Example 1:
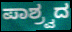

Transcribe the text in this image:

ಪಾಶ್ರ್ವದ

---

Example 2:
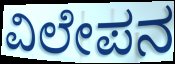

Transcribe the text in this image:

ವಿಲೇಪನ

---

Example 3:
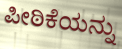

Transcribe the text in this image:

ಪೀಠಿಕೆಯನ್ನು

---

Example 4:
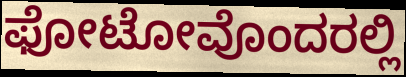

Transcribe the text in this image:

ಫೋಟೋವೊಂದರಲ್ಲಿ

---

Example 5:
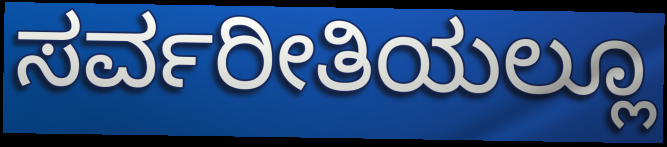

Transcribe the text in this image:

ಸರ್ವರೀತಿಯಲ್ಲೂ